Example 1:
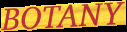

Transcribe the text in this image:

BOTANY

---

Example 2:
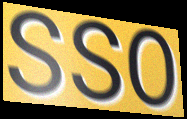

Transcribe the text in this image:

SSO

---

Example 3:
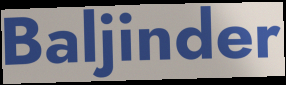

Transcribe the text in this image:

Baljinder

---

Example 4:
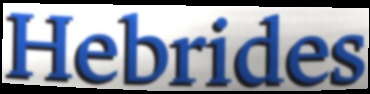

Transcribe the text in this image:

Hebrides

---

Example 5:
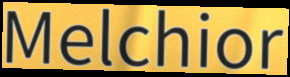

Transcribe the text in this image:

Melchior